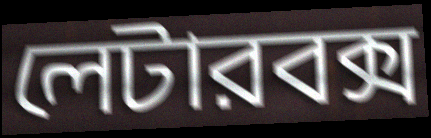
লেটারবক্স